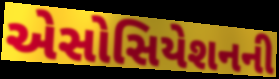
એસોસિયેશનની